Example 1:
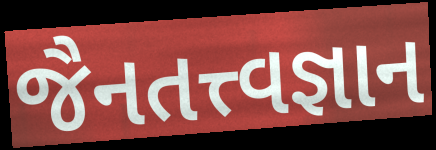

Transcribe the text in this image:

જૈનતત્ત્વજ્ઞાન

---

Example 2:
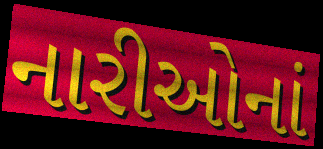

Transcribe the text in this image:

નારીઓનાં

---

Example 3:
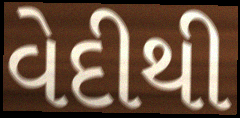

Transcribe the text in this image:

વેદીથી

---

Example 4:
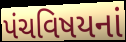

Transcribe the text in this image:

પંચવિષયનાં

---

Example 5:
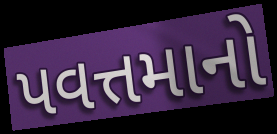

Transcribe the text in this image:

પવત્તમાનો